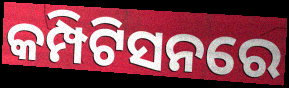
କମ୍ପିଟିସନରେ